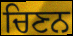
ਚਿਣਨ